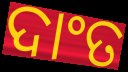
ଦାଂତ